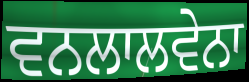
ਵਨਲਾਲਵੇਨਾ